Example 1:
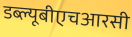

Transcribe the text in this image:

डब्ल्यूबीएचआरसी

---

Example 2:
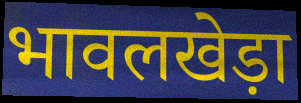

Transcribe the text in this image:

भावलखेड़ा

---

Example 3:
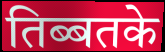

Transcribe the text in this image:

तिब्बतके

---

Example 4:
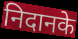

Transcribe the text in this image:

निदानके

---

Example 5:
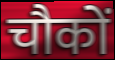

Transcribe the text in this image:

चौकों